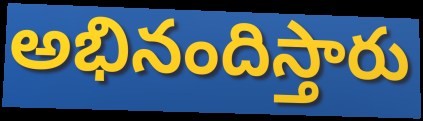
అభినందిస్తారు